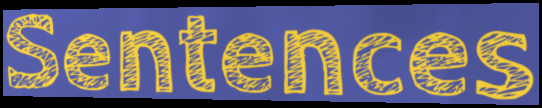
Sentences